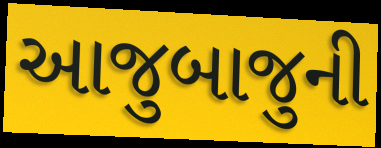
આજુબાજુની